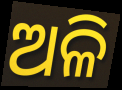
ଅଳି